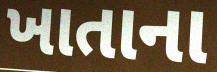
ખાતાના